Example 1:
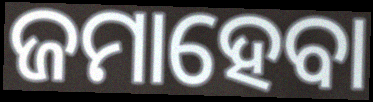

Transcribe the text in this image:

ଜମାହେବା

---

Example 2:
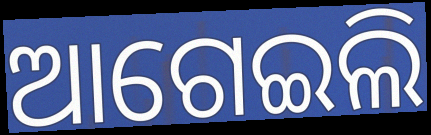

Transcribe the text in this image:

ଆଗେଇଲି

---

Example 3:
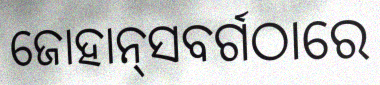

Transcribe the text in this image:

ଜୋହାନ୍‌ସବର୍ଗଠାରେ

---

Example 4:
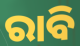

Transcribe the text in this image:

ରାବି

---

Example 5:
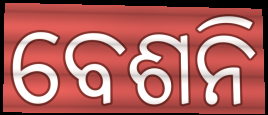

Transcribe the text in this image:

ବେଶନି